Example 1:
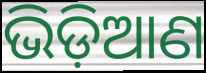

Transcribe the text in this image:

ଭିଡ଼ିଆଣ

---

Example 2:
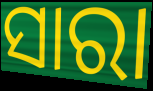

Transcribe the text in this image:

ସାରା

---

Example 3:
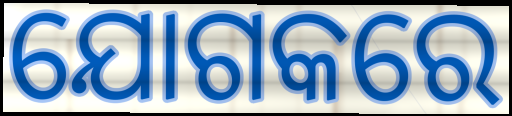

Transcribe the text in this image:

ଯୋଗକରେ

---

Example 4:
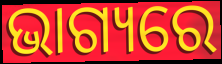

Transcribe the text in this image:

ଭାଗ୍ୟରେ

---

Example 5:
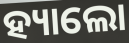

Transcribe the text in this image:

ହ୍ୟାଲୋ